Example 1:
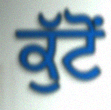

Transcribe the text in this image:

ਕੁੱਟੋਂ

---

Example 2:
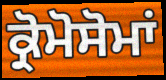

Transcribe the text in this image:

ਕ੍ਰੋਮੋਸੋਮਾਂ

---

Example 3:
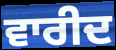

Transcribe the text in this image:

ਵਾਰੀਦ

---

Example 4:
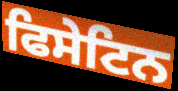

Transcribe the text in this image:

ਫਿਸੇਟਿਨ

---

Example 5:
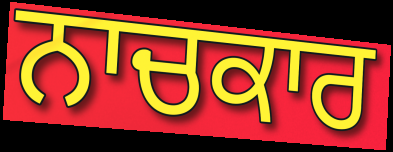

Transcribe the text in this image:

ਨਾਚਕਾਰ